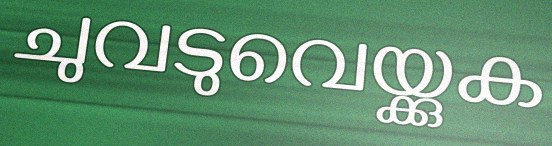
ചുവടുവെയ്ക്കുക